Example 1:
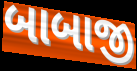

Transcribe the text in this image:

બાબાજી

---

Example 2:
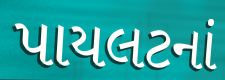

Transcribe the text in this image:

પાયલટનાં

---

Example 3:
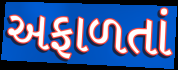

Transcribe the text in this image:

અફાળતાં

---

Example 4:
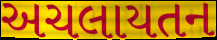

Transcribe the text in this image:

અચલાયતન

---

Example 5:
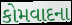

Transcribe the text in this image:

કોમવાદના